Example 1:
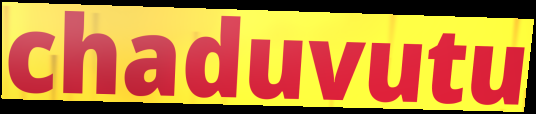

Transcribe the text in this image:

chaduvutu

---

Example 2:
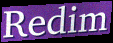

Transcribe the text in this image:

Redim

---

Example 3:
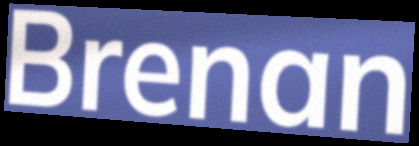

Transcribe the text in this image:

Brenan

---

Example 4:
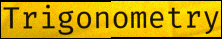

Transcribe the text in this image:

Trigonometry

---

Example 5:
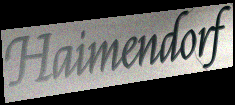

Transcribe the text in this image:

Haimendorf